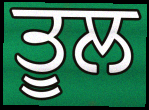
ਤੂਲ